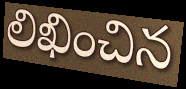
లిఖించిన